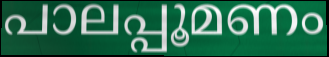
പാലപ്പൂമണം